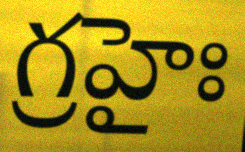
గ్రహైః